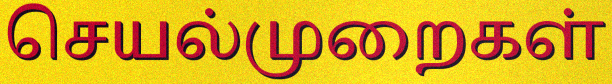
செயல்முறைகள்